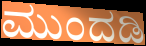
ಮುಂದಡಿ